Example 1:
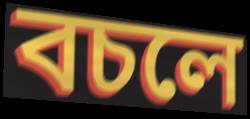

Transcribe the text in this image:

বচলে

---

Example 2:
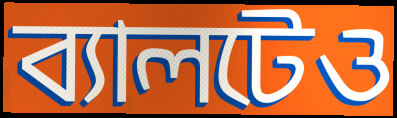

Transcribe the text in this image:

ব্যালটেও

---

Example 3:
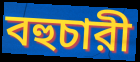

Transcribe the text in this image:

বহুচারী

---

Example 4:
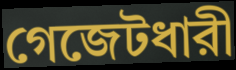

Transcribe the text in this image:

গেজেটধারী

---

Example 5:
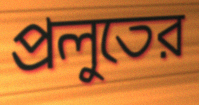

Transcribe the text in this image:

প্রলুতের